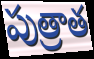
పుత్రాత